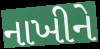
નાખીને